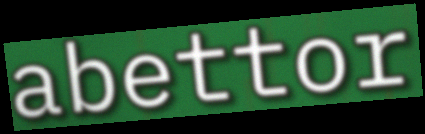
abettor